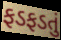
ફડફડતું